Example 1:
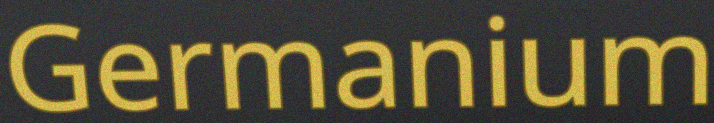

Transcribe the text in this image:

Germanium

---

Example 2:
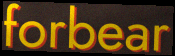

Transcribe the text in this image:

forbear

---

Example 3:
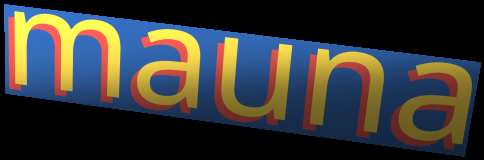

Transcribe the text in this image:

mauna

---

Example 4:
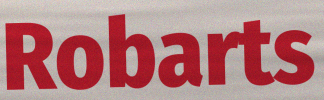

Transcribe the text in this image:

Robarts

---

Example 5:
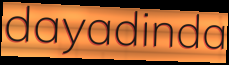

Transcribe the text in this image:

dayadinda